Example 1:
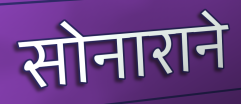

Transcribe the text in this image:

सोनाराने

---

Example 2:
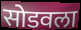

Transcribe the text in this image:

सोडवला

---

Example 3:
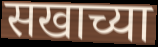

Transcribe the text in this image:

सखाच्या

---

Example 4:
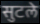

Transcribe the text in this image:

सुटले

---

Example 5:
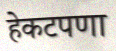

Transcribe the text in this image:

हेकटपणा